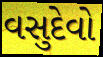
વસુદેવો